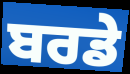
ਬਰਡੇ